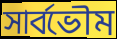
সাৰ্বভৌম